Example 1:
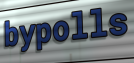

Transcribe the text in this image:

bypolls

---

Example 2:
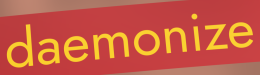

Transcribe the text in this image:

daemonize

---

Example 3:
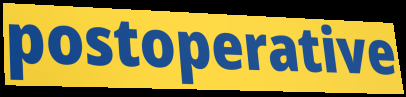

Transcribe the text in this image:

postoperative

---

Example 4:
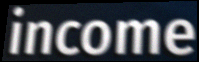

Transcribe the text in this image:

income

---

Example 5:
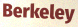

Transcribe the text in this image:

Berkeley